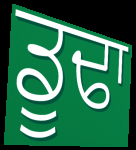
ਡੂਢਾ